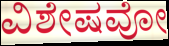
ವಿಶೇಷವೋ